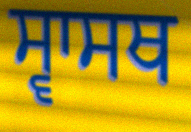
ਸ੍ਵਾਸਥ